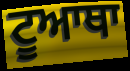
ਟੂਆਥਾ